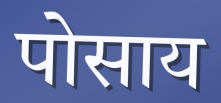
पोसाय